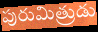
పురుమిత్రుడు